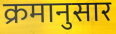
क्रमानुसार